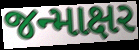
જન્માક્ષર